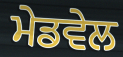
ਮੇਡਵੇਲ